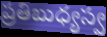
ప్రతిబుధ్యస్వ